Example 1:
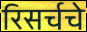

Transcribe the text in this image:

रिसर्चचे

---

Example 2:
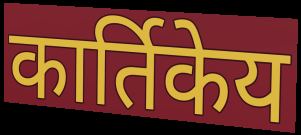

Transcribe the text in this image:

कार्तिकेय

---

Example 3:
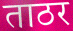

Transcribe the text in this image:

ताठर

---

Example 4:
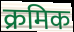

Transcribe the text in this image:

क्रमिक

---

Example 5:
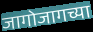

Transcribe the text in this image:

जागोजागच्या